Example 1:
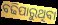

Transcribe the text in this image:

ବଢିପାରୁଥିବା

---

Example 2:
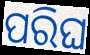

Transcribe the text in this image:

ପରିଘ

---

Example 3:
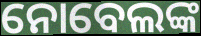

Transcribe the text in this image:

ନୋବେଲଙ୍କ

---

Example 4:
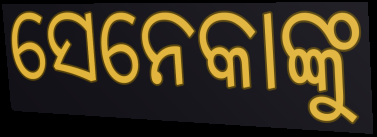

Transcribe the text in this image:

ସେନେକାଙ୍କୁ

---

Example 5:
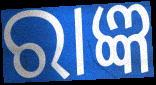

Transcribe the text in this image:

ରାଜ୍ଞ